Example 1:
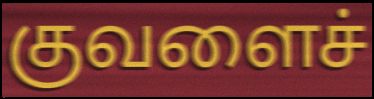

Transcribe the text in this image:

குவளைச்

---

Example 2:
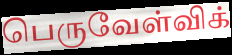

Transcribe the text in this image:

பெருவேள்விக்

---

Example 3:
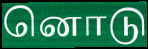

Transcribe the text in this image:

னொடு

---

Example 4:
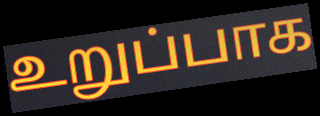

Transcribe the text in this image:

உறுப்பாக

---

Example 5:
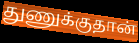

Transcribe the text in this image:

துணுக்குதான்